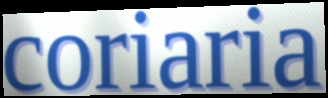
coriaria